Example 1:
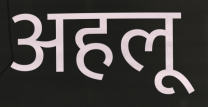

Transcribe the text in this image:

अहलू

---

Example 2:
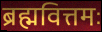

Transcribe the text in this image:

ब्रह्मवित्तमः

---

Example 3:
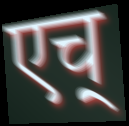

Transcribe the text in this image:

एच्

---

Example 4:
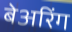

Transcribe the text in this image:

बेअरिंग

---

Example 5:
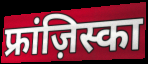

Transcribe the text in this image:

फ्रांज़िस्का